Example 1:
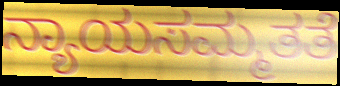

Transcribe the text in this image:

ನ್ಯಾಯಸಮ್ಮತತೆ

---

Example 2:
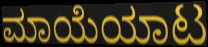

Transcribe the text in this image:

ಮಾಯೆಯಾಟ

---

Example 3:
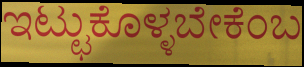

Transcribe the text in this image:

ಇಟ್ಟುಕೊಳ್ಳಬೇಕೆಂಬ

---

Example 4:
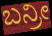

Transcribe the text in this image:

ಬನ್ರೀ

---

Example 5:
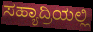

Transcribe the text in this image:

ಸಹ್ಯಾದ್ರಿಯಲ್ಲಿ